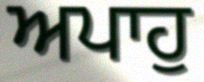
ਅਪਾਹੁ